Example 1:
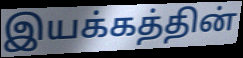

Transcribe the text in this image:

இயக்கத்தின்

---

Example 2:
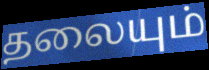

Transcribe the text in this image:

தலையும்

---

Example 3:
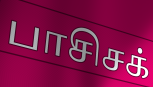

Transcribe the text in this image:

பாசிசக்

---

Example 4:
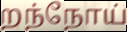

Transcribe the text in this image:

றந்நோய்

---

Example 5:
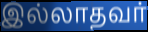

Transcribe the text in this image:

இல்லாதவர்